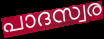
പാദസ്വര